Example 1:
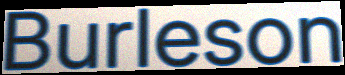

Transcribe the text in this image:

Burleson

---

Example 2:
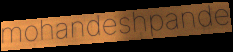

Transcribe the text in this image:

mohandeshpande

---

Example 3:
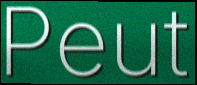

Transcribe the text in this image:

Peut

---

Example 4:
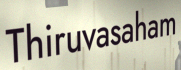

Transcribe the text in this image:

Thiruvasaham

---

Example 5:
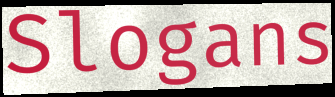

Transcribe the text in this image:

Slogans